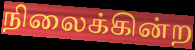
நிலைக்கின்ற